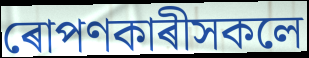
ৰোপণকাৰীসকলে